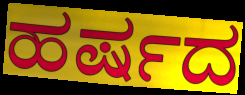
ಹರ್ಷದ